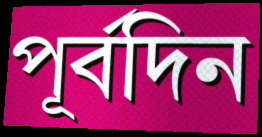
পূর্বদিন